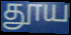
தூய